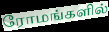
ரோமங்களில்